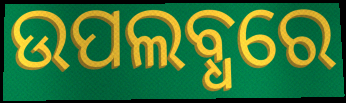
ଉପଲବ୍ଧରେ